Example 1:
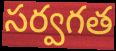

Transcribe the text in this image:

సర్వగత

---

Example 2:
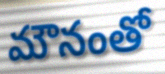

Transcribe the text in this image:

మౌనంతో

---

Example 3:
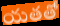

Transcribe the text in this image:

యతతో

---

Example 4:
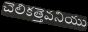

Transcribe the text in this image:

చెలికత్తెవనియు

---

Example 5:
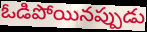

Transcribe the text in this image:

ఓడిపోయినప్పుడు